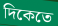
দিকেতে